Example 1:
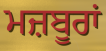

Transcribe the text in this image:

ਮਜ਼ਬੂਰਾਂ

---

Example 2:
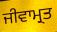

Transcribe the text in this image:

ਜੀਵਾਮ੍ਰਤ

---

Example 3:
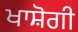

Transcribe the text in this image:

ਖਾਸ਼ੋਗੀ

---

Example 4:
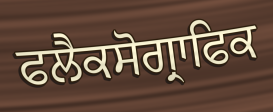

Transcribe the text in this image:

ਫਲੈਕਸੋਗ੍ਰਾਫਿਕ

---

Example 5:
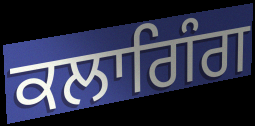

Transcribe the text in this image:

ਕਲਾਗਿੰਗ